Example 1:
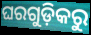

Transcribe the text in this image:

ଘରଗୁଡ଼ିକରୁ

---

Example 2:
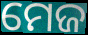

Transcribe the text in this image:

ମେଜ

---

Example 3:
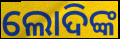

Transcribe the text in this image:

ଲୋଦିଙ୍କ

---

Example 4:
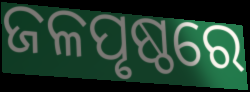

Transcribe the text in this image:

ଜଳପୃଷ୍ଠରେ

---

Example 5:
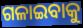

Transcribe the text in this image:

ଗଳାଇବାକୁ